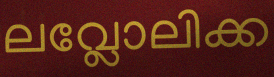
ലവ്ലോലിക്ക